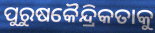
ପୁରୁଷକୈନ୍ଦ୍ରିକତାକୁ